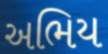
અભિય